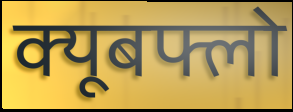
क्यूबफ्लो